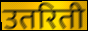
उतरिती